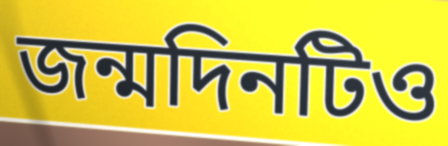
জন্মদিনটিও